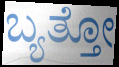
ಬ್ಯತ್ತೋ